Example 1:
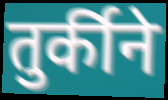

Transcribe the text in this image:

तुर्कीने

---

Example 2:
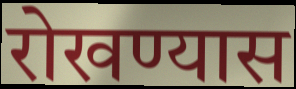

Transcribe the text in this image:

रोखण्यास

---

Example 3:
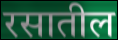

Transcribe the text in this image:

रसातील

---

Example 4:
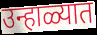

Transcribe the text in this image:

उन्हाळ्यात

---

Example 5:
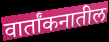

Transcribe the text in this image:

वार्तांकनातील